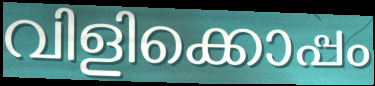
വിളിക്കൊപ്പം